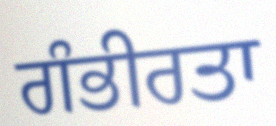
ਗੰਭੀਰਤਾ